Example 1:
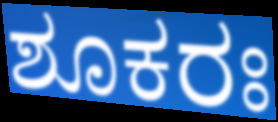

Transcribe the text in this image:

ಶೂಕರಃ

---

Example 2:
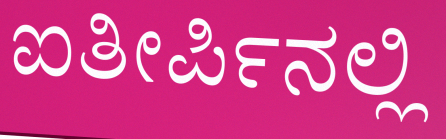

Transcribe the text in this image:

ಐತೀರ್ಪಿನಲ್ಲಿ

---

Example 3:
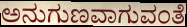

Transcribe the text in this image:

ಅನುಗುಣವಾಗುವಂತೆ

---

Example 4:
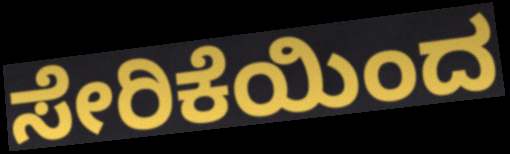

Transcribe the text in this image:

ಸೇರಿಕೆಯಿಂದ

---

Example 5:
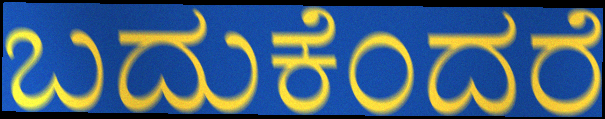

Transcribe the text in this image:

ಬದುಕೆಂದರೆ